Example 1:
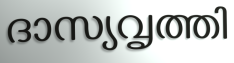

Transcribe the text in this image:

ദാസ്യവൃത്തി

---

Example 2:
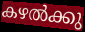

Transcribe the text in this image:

കഴൽക്കു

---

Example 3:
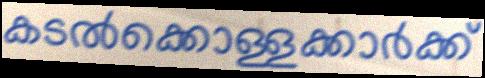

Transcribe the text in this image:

കടൽക്കൊള്ളക്കാർക്ക്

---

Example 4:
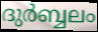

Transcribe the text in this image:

ദുർബ്ബലം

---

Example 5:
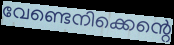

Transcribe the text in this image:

വേണ്ടെനിക്കെന്റെ